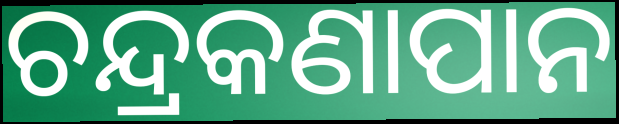
ଚନ୍ଦ୍ରକଣାପାନ